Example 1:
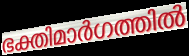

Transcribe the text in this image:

ഭക്തിമാർഗത്തിൽ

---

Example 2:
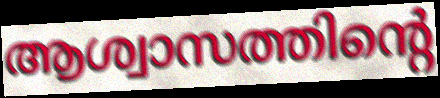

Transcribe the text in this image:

ആശ്വാസത്തിന്റെ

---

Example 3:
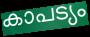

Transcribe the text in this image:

കാപട്യം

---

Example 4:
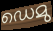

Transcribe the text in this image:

ഡെമു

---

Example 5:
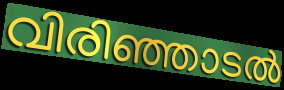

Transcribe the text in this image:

വിരിഞ്ഞാടൽ